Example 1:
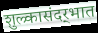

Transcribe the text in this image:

शुल्कासंदर्भात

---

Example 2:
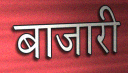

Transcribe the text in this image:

बाजारी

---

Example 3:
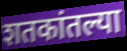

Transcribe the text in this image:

शतकांतल्या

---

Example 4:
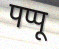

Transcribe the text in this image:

पप्पू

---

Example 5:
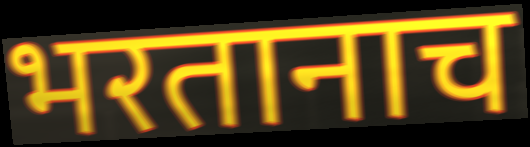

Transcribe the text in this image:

भरतानाच